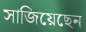
সাজিয়েছেন